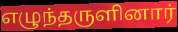
எழுந்தருளினார்